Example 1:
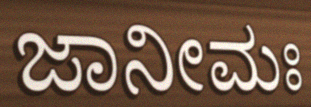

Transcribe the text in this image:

ಜಾನೀಮಃ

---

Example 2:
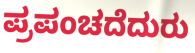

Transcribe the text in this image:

ಪ್ರಪಂಚದೆದುರು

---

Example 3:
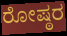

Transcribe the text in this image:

ರೋಷ್ಠರ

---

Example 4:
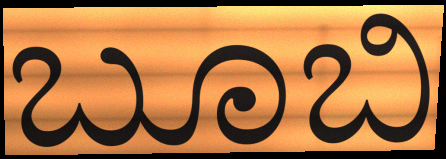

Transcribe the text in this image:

ಬೂಬಿ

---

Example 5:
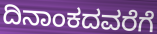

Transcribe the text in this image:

ದಿನಾಂಕದವರೆಗೆ